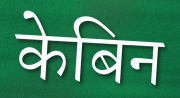
केबिन